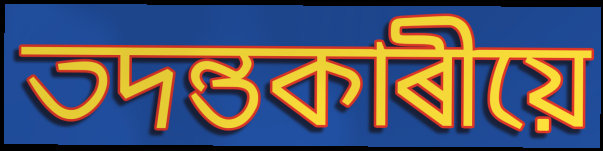
তদন্তকাৰীয়ে